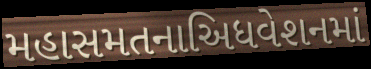
મહાસમતનાઅિધવેશનમાં